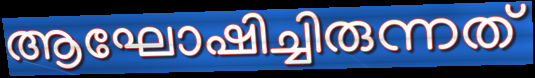
ആഘോഷിച്ചിരുന്നത്